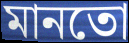
মানতো